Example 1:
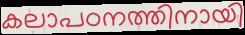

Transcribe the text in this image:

കലാപഠനത്തിനായി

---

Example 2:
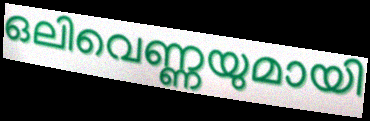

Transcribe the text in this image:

ഒലിവെണ്ണയുമായി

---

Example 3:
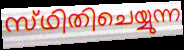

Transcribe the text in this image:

സ്‌ഥിതിചെയ്യുന്ന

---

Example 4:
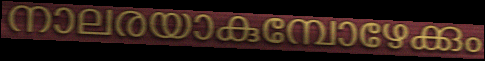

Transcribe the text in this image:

നാലരയാകുമ്പോഴേക്കും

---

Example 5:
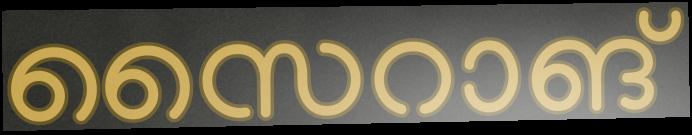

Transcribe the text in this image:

സൈറാങ്